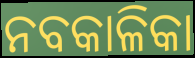
ନବକାଳିକା